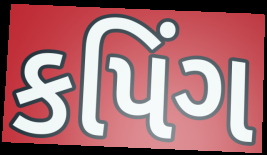
કપિંગ